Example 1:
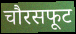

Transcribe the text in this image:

चौरसफूट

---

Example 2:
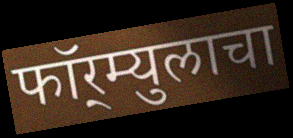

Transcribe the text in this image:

फॉर्म्युलाचा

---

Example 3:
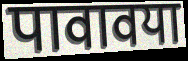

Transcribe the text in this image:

पावावया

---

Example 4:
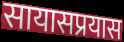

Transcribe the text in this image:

सायासप्रयास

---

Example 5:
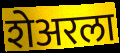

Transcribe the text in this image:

शेअरला